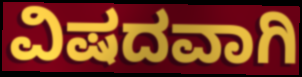
ವಿಷದವಾಗಿ